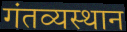
गंतव्यस्थान